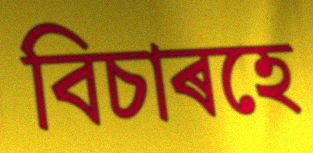
বিচাৰহে